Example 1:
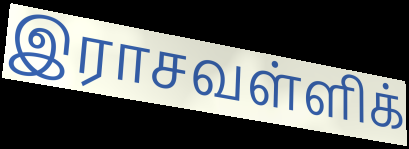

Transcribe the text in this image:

இராசவள்ளிக்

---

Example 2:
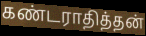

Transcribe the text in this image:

கண்டராதித்தன்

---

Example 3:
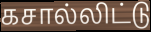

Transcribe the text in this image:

கசால்லிட்டு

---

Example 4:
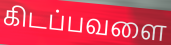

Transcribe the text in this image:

கிடப்பவளை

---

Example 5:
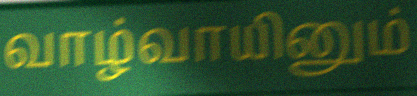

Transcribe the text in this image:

வாழ்வாயினும்